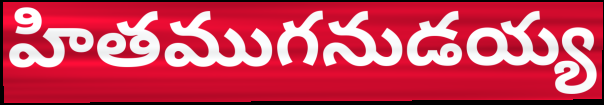
హితముగనుడయ్య